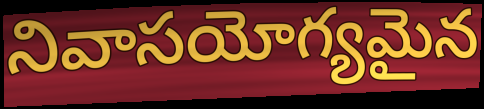
నివాసయోగ్యమైన